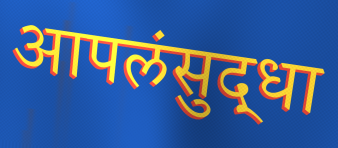
आपलंसुद्धा